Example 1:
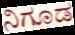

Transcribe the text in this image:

ನಿಗೂಡ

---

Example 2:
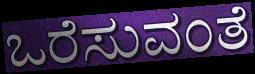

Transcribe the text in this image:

ಒರೆಸುವಂತೆ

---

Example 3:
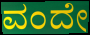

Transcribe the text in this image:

ವಂದೇ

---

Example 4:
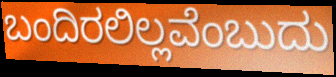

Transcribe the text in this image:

ಬಂದಿರಲಿಲ್ಲವೆಂಬುದು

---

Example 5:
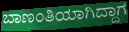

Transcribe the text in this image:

ಬಾಣಂತಿಯಾಗಿದ್ದಾಗ